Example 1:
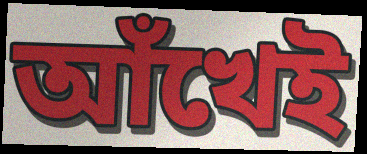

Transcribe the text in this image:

আঁখেই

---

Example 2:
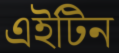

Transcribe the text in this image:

এইটিন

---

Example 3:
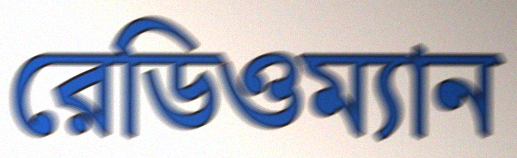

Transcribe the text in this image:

রেডিওম্যান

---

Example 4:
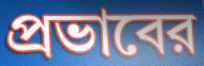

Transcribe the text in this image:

প্রভাবের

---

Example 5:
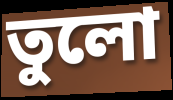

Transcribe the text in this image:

তুলো